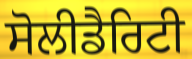
ਸੋਲੀਡੈਰਿਟੀ